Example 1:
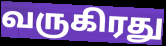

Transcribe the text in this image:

வருகிரது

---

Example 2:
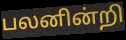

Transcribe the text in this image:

பலனின்றி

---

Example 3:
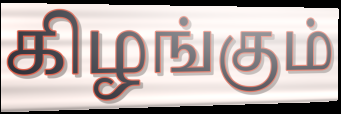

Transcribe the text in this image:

கிழங்கும்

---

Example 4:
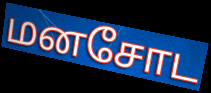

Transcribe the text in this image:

மனசோட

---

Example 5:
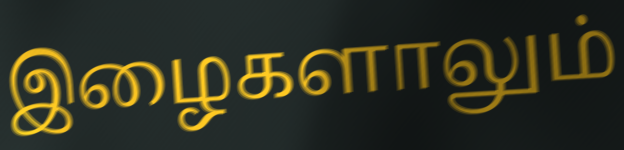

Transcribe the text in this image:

இழைகளாலும்